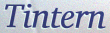
Tintern